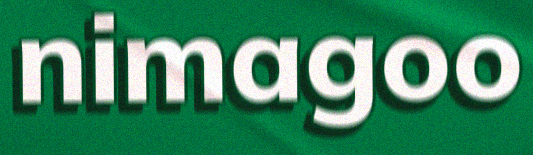
nimagoo